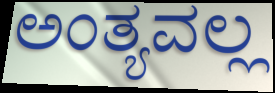
ಅಂತ್ಯವಲ್ಲ